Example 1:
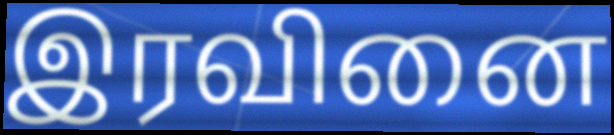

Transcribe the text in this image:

இரவினை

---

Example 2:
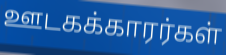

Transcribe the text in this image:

ஊடகக்காரர்கள்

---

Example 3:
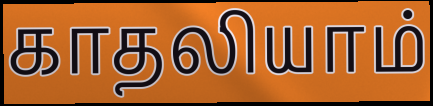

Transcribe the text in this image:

காதலியாம்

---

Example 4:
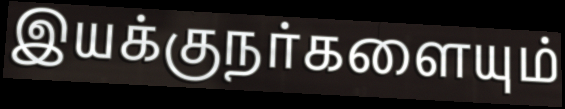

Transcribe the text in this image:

இயக்குநர்களையும்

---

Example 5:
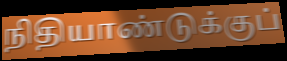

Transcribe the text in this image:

நிதியாண்டுக்குப்